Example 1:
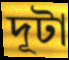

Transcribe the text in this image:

দূটা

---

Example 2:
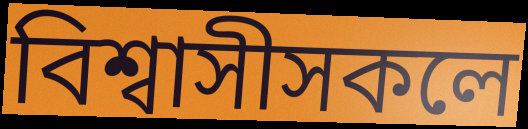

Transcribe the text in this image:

বিশ্বাসীসকলে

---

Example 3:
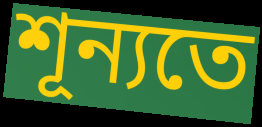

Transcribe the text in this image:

শূন্যতে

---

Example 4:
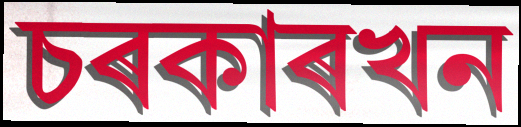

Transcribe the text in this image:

চৰকাৰখন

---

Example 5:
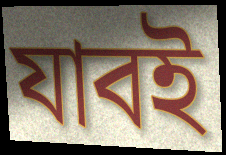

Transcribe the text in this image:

যাবই